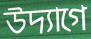
উদ্যাগে